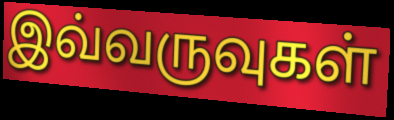
இவ்வருவுகள்